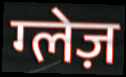
ग्लेज़